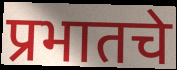
प्रभातचे